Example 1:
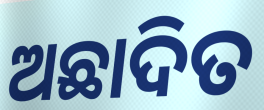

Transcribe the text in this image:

ଅଛାଦିତ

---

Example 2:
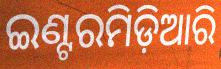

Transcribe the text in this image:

ଇଣ୍ଟରମିଡ଼ିଆରି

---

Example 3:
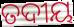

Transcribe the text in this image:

ତଦୀୟ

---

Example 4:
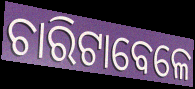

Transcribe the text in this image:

ଚାରିଟାବେଳେ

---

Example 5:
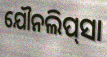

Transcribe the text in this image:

ଯୌନଲିପ୍‌ସା